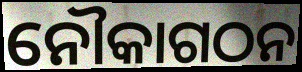
ନୌକାଗଠନ